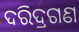
ଦରିଦ୍ରଗଣ